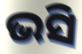
ଭସି